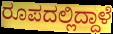
ರೂಪದಲ್ಲಿದ್ದಾಳೆ